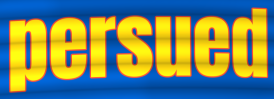
persued